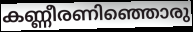
കണ്ണീരണിഞ്ഞൊരു